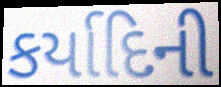
કર્યાદિની